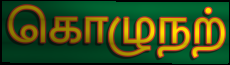
கொழுநற்